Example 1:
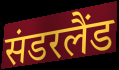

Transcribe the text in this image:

संडरलैंड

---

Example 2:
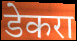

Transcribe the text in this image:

डेकरा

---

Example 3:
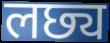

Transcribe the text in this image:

लछ्य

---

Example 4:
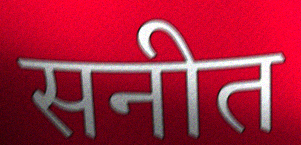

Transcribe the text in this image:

सनीत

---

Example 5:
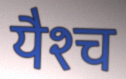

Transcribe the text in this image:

यैश्च